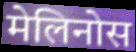
मेलिनोस